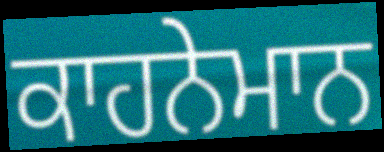
ਕਾਹਨੇਮਾਨ